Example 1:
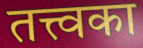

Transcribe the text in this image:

तत्त्वका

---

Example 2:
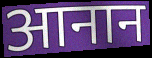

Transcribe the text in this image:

आनान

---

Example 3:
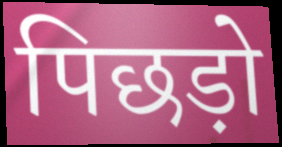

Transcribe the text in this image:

पिछड़ो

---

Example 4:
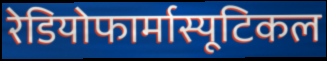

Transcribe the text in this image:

रेडियोफार्मास्यूटिकल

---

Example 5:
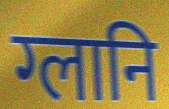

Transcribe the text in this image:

ग्लानि